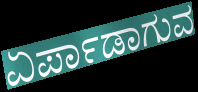
ಏರ್ಪಾಡಾಗುವ